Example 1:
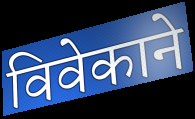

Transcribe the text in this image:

विवेकाने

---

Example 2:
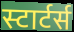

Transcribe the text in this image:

स्टार्टर्स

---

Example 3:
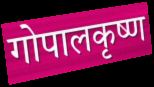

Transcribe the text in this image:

गोपालकृष्ण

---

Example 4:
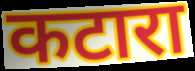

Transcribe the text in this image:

कटारा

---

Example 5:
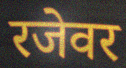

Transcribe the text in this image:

रजेवर